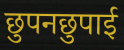
छुपनछुपाई